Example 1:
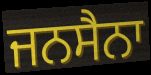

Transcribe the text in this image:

ਜਨਸੈਨਾ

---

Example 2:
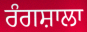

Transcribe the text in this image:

ਰੰਗਸ਼ਾਲਾ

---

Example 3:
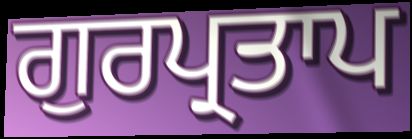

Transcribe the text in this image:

ਗੁਰਪ੍ਰਤਾਪ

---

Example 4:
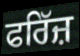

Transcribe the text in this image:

ਫਰਿੱਜ਼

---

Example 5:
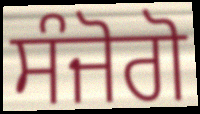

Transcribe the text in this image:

ਸੰਜੋਗੋ